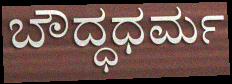
ಬೌದ್ಧಧರ್ಮ